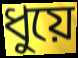
ধুয়ে